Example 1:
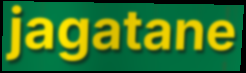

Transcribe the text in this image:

jagatane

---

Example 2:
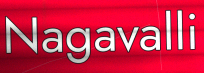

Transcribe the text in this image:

Nagavalli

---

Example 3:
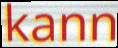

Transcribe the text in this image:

kann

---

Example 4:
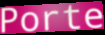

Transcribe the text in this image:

Porte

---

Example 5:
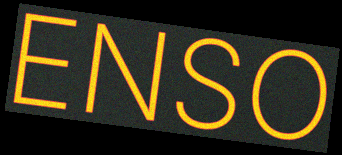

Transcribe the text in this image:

ENSO